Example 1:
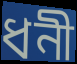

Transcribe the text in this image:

ধনী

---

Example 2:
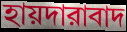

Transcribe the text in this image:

হায়দারাবাদ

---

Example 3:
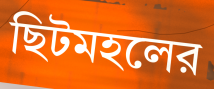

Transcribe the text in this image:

ছিটমহলের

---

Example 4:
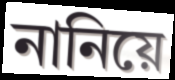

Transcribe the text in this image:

নানিয়ে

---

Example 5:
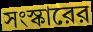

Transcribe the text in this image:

সংস্কারের